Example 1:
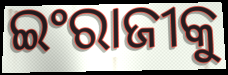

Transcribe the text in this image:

ଇଂରାଜୀକୁ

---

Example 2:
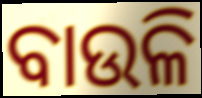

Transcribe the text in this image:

ବାଉଳି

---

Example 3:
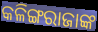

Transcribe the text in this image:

କଳିଙ୍ଗରାଜାଙ୍କ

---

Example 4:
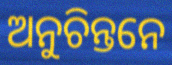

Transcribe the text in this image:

ଅନୁଚିନ୍ତନେ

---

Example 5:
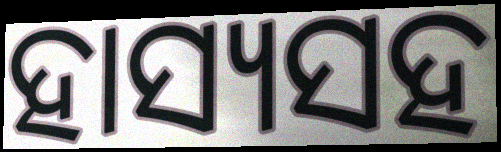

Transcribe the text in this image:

ହାସ୍ୟସହ